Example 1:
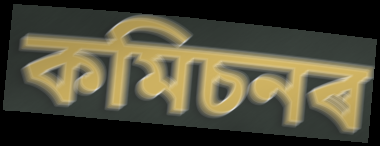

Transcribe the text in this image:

কমিচনৰ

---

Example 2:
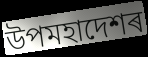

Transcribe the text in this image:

উপমহাদেশৰ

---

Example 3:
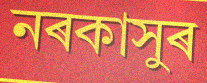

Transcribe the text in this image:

নৰকাসুৰ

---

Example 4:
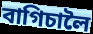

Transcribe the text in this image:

বাগিচালৈ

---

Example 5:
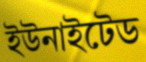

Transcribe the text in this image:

ইউনাইটেড